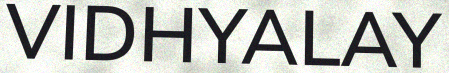
VIDHYALAY